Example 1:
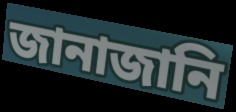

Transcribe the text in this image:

জানাজানি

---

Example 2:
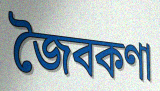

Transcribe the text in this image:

জৈবকণা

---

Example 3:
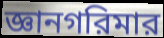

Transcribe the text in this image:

জ্ঞানগরিমার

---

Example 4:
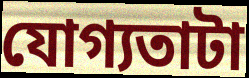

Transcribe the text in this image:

যোগ্যতাটা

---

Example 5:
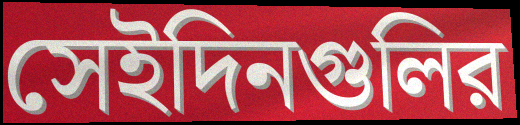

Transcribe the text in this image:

সেইদিনগুলির